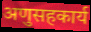
अणुसहकार्य